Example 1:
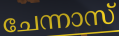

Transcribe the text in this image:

ചേന്നാസ്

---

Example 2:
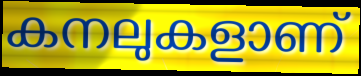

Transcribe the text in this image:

കനലുകളാണ്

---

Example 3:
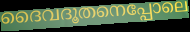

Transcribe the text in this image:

ദൈവദൂതനെപ്പോലെ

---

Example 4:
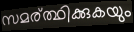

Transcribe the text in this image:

സമര്ത്ഥിക്കുകയും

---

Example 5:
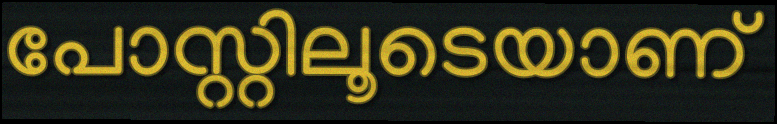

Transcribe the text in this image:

പോസ്റ്റിലൂടെയാണ്